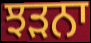
ਝੜਨਾ